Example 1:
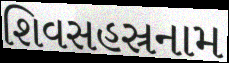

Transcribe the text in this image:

શિવસહસ્રનામ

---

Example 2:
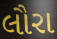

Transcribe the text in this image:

લૌરા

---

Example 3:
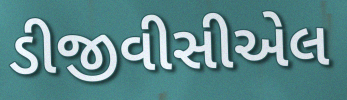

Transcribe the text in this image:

ડીજીવીસીએલ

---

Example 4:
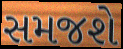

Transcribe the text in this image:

સમજશે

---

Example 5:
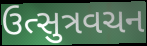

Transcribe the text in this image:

ઉત્સુત્રવચન